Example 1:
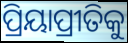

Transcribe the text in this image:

ପ୍ରିୟାପ୍ରୀତିକୁ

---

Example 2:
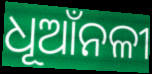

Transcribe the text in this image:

ଧୂଆଁନଳୀ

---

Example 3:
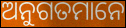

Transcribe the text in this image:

ଅନୁଗତମାନେ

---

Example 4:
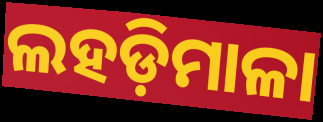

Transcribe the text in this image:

ଲହଡ଼ିମାଳା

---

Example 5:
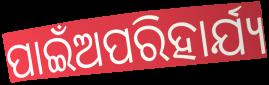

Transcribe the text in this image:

ପାଇଁଅପରିହାର୍ଯ୍ୟ